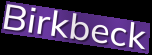
Birkbeck